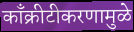
काँक्रीटीकरणामुळे